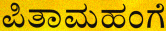
ಪಿತಾಮಹಂಗೆ